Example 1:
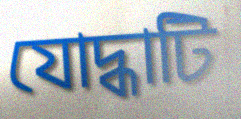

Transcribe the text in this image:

যোদ্ধাটি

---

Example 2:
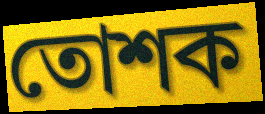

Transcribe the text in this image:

তোশক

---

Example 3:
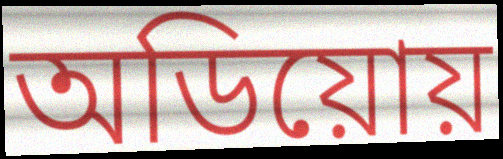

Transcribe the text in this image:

অডিয়োয়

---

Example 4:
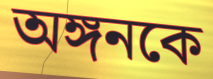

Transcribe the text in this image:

অঙ্গনকে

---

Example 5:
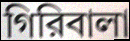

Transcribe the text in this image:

গিরিবালা